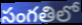
సంగతిలో